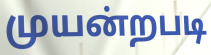
முயன்றபடி